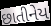
છાતીનેય